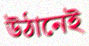
উঠানেই